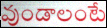
వుండాలంటే